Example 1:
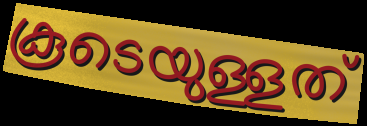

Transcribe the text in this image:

കൂടെയുള്ളത്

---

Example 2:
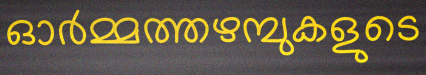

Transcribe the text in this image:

ഓർമ്മത്തഴമ്പുകളുടെ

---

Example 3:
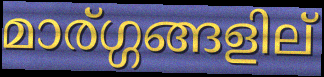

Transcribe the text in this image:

മാര്ഗ്ഗങ്ങളില്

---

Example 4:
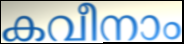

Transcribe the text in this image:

കവീനാം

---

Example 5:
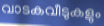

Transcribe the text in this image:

വാടകവീടുകളും